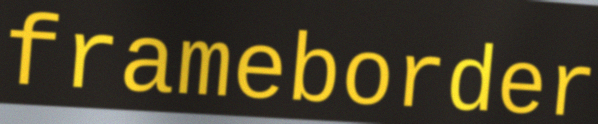
frameborder